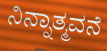
ನಿನ್ನಾತ್ಮವನೆ